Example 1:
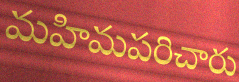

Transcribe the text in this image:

మహిమపరిచారు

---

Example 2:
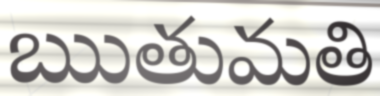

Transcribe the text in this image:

ఋతుమతి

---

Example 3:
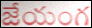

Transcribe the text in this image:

జేయంగ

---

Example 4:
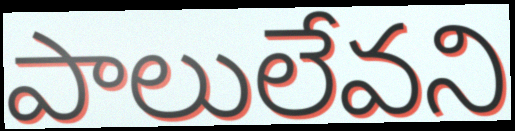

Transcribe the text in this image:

పాలులేవని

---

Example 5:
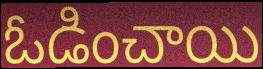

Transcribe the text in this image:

ఓడించాయి